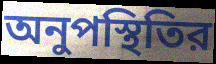
অনুপস্থিতির